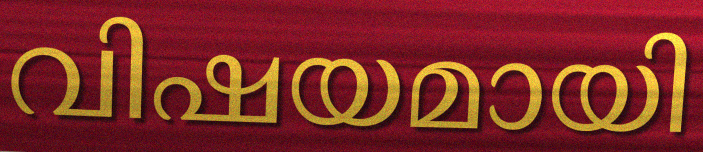
വിഷയമായി